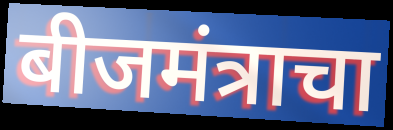
बीजमंत्राचा